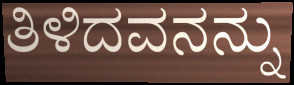
ತಿಳಿದವನನ್ನು